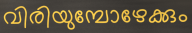
വിരിയുമ്പോഴേക്കും